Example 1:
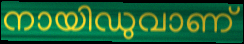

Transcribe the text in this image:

നായിഡുവാണ്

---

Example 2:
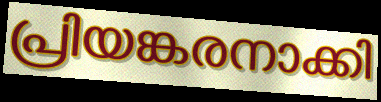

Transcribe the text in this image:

പ്രിയങ്കരനാക്കി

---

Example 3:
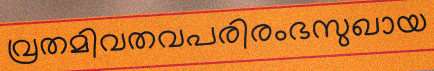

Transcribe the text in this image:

വ്രതമിവതവപരിരംഭസുഖായ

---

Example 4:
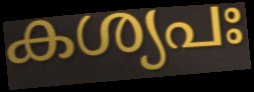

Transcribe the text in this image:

കശ്യപഃ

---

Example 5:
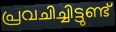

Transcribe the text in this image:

പ്രവചിച്ചിട്ടുണ്ട്